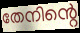
തേനിന്റെ